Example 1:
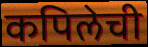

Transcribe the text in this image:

कपिलेची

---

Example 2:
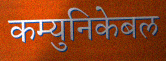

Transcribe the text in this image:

कम्युनिकेबल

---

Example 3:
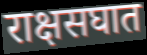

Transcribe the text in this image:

राक्षसघात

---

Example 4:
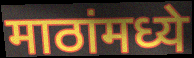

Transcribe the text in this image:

माठांमध्ये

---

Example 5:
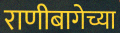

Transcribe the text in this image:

राणीबागेच्या